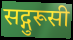
सद्गुरूसी